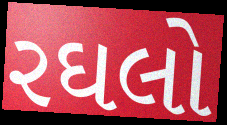
રઘલો